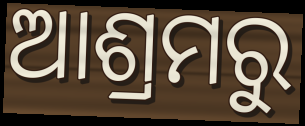
ଆଶ୍ରମରୁ